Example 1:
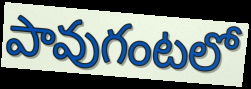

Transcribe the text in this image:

పావుగంటలో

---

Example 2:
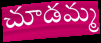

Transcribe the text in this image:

చూడమ్మ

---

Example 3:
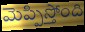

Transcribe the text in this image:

మెప్పిస్తోంది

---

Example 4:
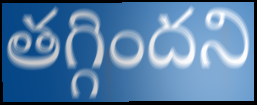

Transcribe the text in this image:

తగ్గిందని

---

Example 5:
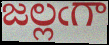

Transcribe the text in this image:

జల్లఁగా